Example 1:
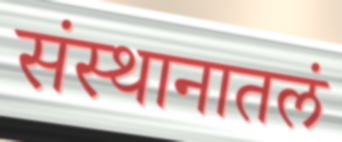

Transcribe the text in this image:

संस्थानातलं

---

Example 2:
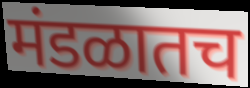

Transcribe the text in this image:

मंडळातच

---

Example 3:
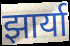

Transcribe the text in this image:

झार्या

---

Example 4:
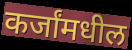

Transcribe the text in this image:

कर्जांमधील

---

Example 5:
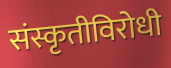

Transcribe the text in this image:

संस्कृतीविरोधी